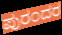
ಪುರಂದರ